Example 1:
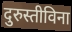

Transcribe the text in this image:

दुरुस्तीविना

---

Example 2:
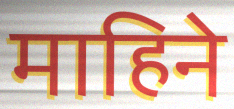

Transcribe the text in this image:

माहिने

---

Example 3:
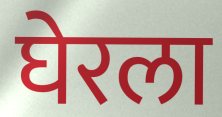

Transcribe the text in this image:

घेरला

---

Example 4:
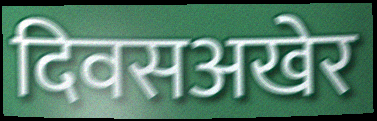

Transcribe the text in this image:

दिवसअखेर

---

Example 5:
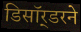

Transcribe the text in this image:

डिसॉर्डरने